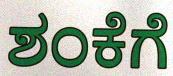
ಶಂಕೆಗೆ